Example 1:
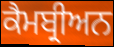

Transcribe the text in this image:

ਕੈਮਬ੍ਰੀਅਨ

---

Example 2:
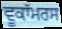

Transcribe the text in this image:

ਵੂਕਾੱਮਰਸ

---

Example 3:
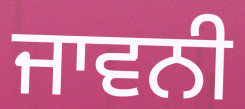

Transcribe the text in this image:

ਜਾਵਨੀ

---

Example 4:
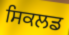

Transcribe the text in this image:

ਸਿਕਲਡ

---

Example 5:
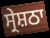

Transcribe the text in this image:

ਸ੍ਰੇਸ਼ਠਾ